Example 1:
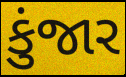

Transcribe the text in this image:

કુંજાર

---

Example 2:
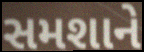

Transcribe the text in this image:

સમશાને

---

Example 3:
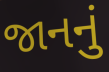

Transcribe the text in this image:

જાનનું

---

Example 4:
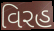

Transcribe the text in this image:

વિરહ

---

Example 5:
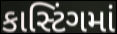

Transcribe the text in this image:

કાસ્ટિંગમાં